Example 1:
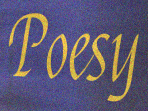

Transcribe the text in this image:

Poesy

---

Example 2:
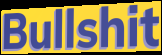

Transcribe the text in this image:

Bullshit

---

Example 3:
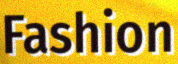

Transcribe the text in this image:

Fashion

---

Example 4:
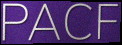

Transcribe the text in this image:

PACF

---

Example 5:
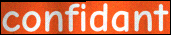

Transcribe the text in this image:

confidant